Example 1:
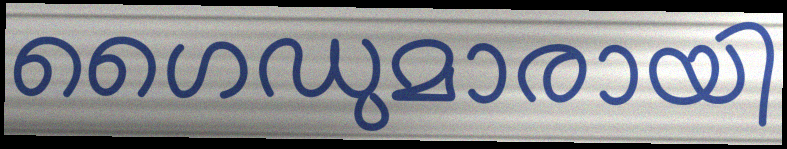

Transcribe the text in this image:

ഗൈഡുമാരായി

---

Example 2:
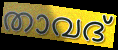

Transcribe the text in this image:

താവദ്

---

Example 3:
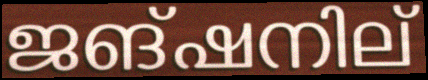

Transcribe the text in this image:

ജങ്ഷനില്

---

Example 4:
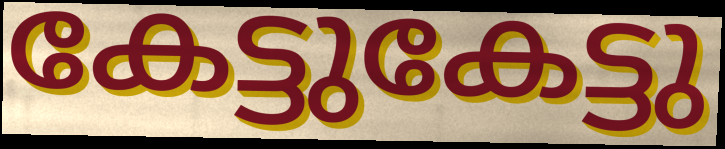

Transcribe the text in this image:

കേട്ടുകേട്ടു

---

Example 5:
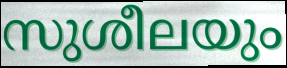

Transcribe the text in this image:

സുശീലയും